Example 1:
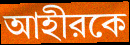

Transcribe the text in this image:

আহীরকে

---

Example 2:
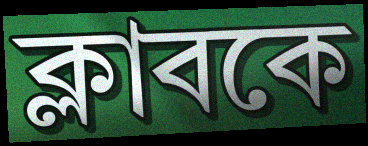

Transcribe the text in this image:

ক্লাবকে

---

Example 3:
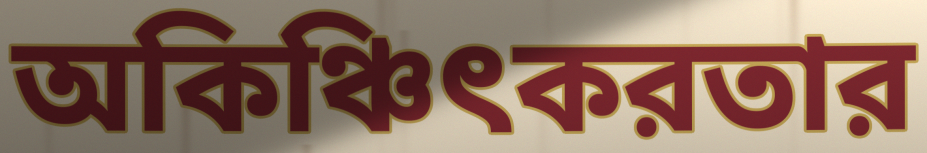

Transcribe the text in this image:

অকিঞ্চিৎকরতার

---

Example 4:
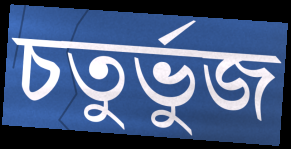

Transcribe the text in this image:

চতুর্ভুজ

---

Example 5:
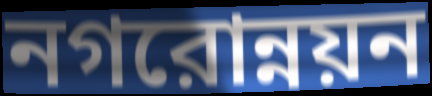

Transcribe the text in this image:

নগরোন্নয়ন